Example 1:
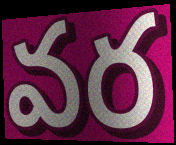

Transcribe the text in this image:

వర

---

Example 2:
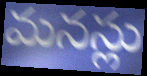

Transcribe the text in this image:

మనస్లు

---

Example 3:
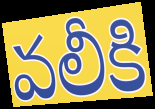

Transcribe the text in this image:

వలీకి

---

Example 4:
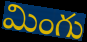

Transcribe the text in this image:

మింగు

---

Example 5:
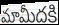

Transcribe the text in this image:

మామీదకి